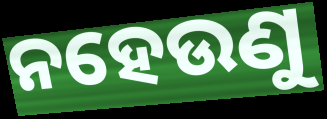
ନହେଉଣୁ